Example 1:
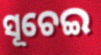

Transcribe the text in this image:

ସୂଚେଇ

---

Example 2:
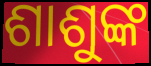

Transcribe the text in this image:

ଶାଶୁଙ୍କ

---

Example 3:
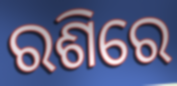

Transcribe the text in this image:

ରଶିରେ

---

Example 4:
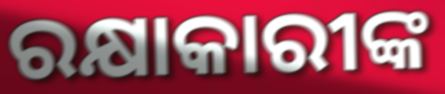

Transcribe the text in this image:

ରକ୍ଷାକାରୀଙ୍କ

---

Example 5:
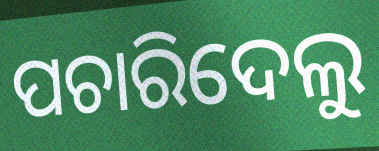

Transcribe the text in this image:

ପଚାରିଦେଲୁ